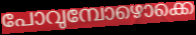
പോവുമ്പോഴൊക്കെ